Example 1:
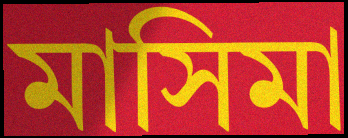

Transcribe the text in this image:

মাসিমা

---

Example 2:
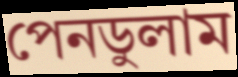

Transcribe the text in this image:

পেনডুলাম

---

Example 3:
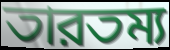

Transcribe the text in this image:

তারতম্য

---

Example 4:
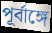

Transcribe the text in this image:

পূর্বাঙ্গে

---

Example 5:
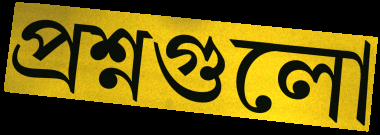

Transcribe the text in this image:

প্রশ্নগুলো